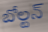
బోల్టన్